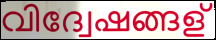
വിദ്വേഷങ്ങള്